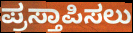
ಪ್ರಸ್ತಾಪಿಸಲು